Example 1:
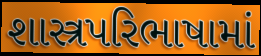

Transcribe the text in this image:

શાસ્ત્રપરિભાષામાં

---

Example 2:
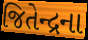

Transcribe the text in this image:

જિતેન્દ્રના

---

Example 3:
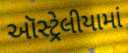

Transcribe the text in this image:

ઑસ્ટ્રેલીયામાં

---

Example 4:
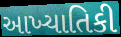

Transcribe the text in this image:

આખ્યાતિકી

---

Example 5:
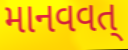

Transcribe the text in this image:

માનવવત્